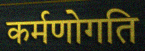
कर्मणोगति